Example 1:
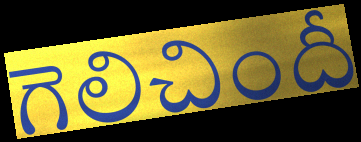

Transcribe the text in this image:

గెలిచిందీ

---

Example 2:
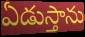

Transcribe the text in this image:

ఏడుస్తాను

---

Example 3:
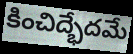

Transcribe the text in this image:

కించిద్భేదమే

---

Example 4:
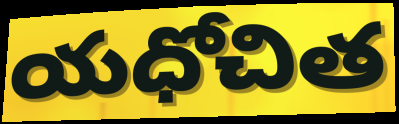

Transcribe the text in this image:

యధోచిత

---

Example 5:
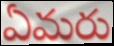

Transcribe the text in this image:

ఏమరు